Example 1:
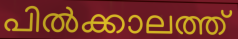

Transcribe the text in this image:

പിൽക്കാലത്ത്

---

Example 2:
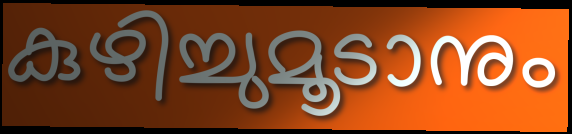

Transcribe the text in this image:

കുഴിച്ചുമൂടാനും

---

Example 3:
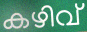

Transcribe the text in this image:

കഴിവ്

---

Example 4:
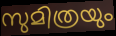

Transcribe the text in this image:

സുമിത്രയും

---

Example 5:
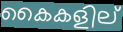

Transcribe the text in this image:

കൈകളില്